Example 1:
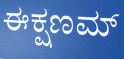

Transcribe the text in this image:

ಈಕ್ಷಣಮ್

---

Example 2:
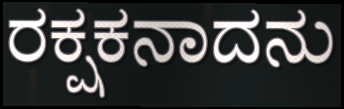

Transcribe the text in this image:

ರಕ್ಷಕನಾದನು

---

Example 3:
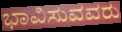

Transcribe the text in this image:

ಭಾವಿಸುವವರು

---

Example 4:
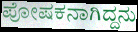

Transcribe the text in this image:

ಪೋಷಕನಾಗಿದ್ದನು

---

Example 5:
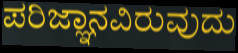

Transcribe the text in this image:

ಪರಿಜ್ಞಾನವಿರುವುದು